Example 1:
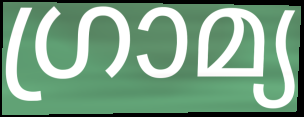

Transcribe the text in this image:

ഗ്രാമ്യ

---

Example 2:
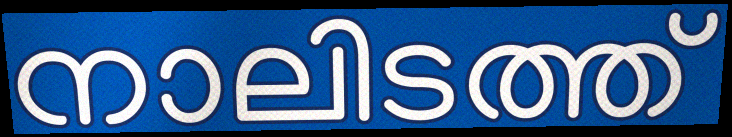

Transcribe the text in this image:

നാലിടത്ത്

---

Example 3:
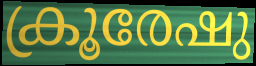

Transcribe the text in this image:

ക്രൂരേഷു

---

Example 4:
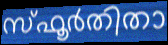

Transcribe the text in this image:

സ്ഫൂർതിതാ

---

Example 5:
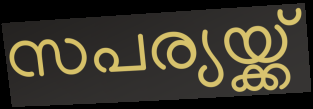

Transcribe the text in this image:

സപര്യയ്ക്ക്